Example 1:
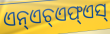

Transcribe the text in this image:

ଏନ୍ଏଚ୍ଏଫ୍ଏସ୍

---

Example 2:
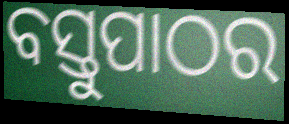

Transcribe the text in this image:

ବସ୍ତୁପାଠର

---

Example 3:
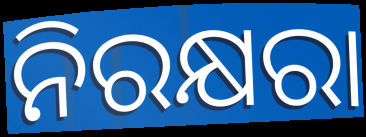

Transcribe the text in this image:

ନିରକ୍ଷରା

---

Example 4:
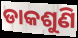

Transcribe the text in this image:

ଡାକଶୁଣି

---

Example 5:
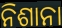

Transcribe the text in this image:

ନିଶାନା